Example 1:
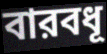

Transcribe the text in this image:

বারবধূ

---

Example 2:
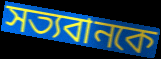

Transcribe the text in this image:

সত্যবানকে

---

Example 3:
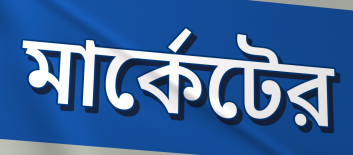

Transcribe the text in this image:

মার্কেটের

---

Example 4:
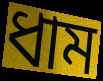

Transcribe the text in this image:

ধাম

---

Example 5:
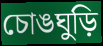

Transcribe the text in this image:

চোঙঘুড়ি